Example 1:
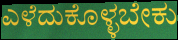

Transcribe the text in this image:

ಎಳೆದುಕೊಳ್ಳಬೇಕು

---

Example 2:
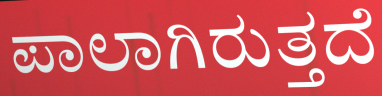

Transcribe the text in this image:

ಪಾಲಾಗಿರುತ್ತದೆ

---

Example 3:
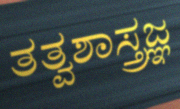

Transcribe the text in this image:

ತತ್ವಶಾಸ್ತ್ರಜ್ಞ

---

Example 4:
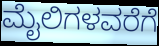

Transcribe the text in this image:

ಮೈಲಿಗಳವರೆಗೆ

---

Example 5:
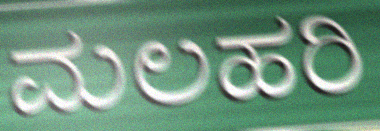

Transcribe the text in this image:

ಮಲಹರಿ